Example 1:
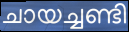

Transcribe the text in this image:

ചായച്ചണ്ടി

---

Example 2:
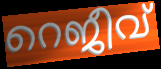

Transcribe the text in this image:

റെജീവ്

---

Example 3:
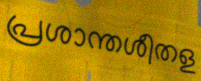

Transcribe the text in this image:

പ്രശാന്തശീതള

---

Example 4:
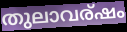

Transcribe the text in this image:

തുലാവര്ഷം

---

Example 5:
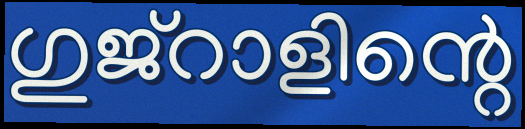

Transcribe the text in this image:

ഗുജ്റാളിന്റെ